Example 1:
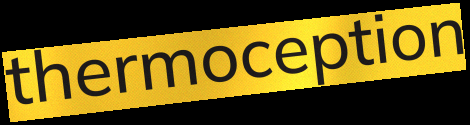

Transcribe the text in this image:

thermoception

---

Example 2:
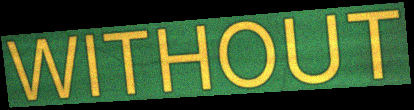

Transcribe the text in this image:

WITHOUT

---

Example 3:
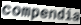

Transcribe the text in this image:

compendia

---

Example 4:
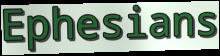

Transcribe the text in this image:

Ephesians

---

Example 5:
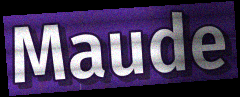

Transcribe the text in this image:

Maude